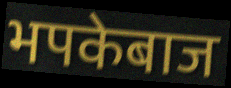
भपकेबाज